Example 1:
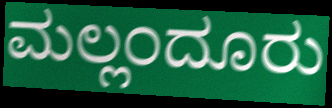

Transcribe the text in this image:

ಮಲ್ಲಂದೂರು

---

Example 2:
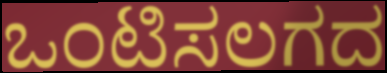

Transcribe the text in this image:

ಒಂಟಿಸಲಗದ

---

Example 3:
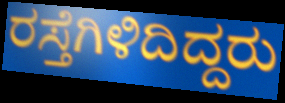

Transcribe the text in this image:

ರಸ್ತೆಗಿಳಿದಿದ್ದರು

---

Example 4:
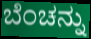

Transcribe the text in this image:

ಬೆಂಚನ್ನು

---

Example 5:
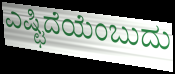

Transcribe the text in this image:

ಎಷ್ಟಿದೆಯೆಂಬುದು